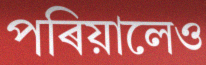
পৰিয়ালেও